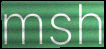
msh